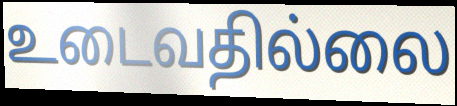
உடைவதில்லை